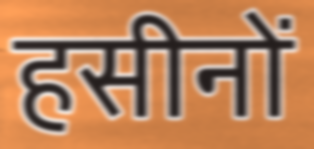
हसीनों